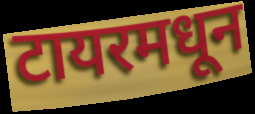
टायरमधून